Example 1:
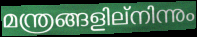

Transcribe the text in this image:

മന്ത്രങ്ങളില്നിന്നും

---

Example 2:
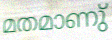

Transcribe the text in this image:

മതമാണു്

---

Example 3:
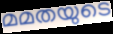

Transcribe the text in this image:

മമതയുടെ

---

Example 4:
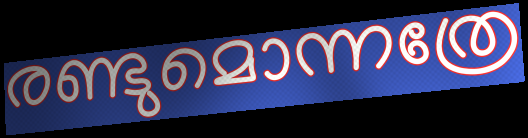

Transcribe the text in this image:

രണ്ടുമൊന്നത്രേ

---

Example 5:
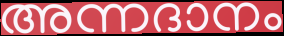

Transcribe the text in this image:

അന്നദാനം